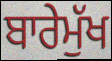
ਬਾਰੇਮੁੱਖ